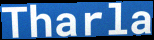
Tharla